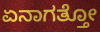
ಏನಾಗತ್ತೋ